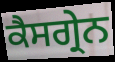
ਕੈਸਗ੍ਰੇਨ